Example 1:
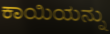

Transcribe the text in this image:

ಕಾಯಿಯನ್ನು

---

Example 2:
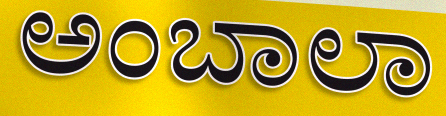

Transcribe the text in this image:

ಅಂಬಾಲಾ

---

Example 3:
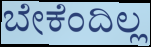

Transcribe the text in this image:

ಬೇಕೆಂದಿಲ್ಲ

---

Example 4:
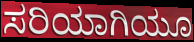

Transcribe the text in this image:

ಸರಿಯಾಗಿಯೂ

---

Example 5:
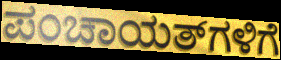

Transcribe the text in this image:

ಪಂಚಾಯತ್‌ಗಳಿಗೆ